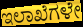
ಇಲಾಖೆಗಳೇ